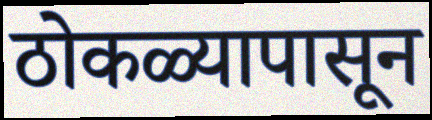
ठोकळ्यापासून